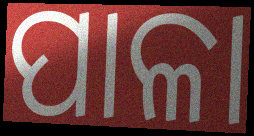
ପାଳା